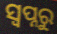
ସ୍ବପ୍ନରୁ